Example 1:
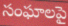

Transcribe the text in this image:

సంఘాలపై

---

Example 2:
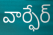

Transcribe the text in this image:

వార్ఫేర్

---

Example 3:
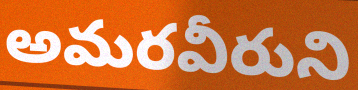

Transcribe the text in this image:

అమరవీరుని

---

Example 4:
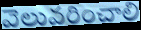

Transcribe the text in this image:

వెలువరించాలి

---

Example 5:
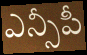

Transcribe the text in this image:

ఎన్సీపీ